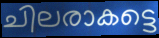
ചിലരാകട്ടെ